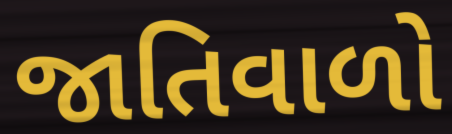
જાતિવાળો